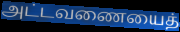
அட்டவணையைத்